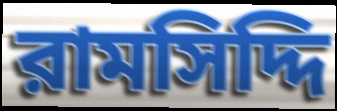
রামসিদ্দি